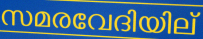
സമരവേദിയില്